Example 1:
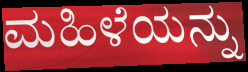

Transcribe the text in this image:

ಮಹಿಳೆಯನ್ನು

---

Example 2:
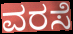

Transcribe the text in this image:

ವರಸೆ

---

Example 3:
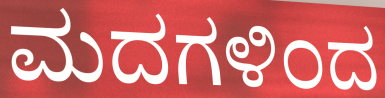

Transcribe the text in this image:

ಮದಗಳಿಂದ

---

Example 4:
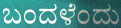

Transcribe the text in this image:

ಬಂದಳೆಂದು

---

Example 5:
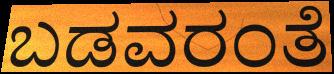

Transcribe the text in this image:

ಬಡವರಂತೆ